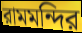
রামমন্দির